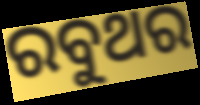
ରବୁଥର